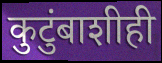
कुटुंबाशीही